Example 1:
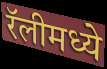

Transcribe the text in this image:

रॅलीमध्ये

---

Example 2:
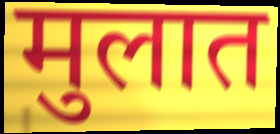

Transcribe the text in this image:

मुलात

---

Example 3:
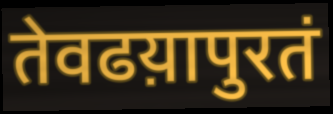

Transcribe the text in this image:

तेवढय़ापुरतं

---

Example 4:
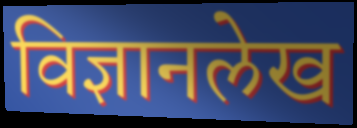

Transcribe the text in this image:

विज्ञानलेख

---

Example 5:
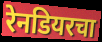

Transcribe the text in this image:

रेनडियरचा